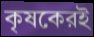
কৃষকেরই